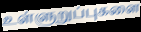
உள்ளுறுப்புகளை